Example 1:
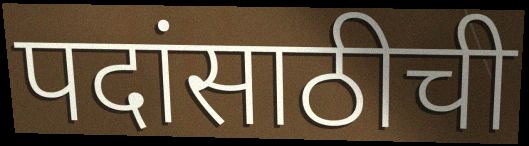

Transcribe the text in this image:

पदांसाठीची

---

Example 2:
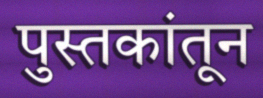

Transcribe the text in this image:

पुस्तकांतून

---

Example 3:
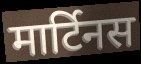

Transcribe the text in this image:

मार्टिनस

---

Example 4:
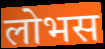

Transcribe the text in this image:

लोभस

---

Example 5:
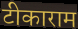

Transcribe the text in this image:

टीकाराम